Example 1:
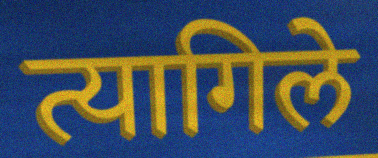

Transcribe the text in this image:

त्यागिले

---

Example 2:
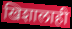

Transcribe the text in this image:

खिशालाही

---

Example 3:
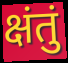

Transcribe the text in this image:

क्षंतुं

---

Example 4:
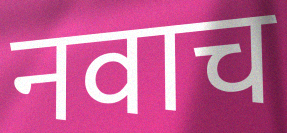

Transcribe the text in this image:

नवाच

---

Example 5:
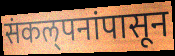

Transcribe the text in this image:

संकल्पनांपासून